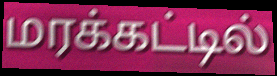
மரக்கட்டில்